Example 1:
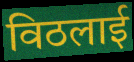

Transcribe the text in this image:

विठलाई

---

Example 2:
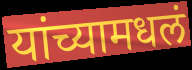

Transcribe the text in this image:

यांच्यामधलं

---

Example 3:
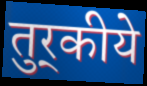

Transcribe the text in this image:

तुर्कीये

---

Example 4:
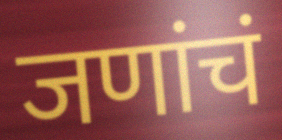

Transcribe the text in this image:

जणांचं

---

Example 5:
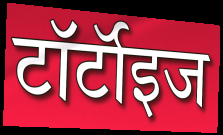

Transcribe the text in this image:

टॉर्टॉइज